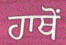
ਹਾਥੋਂ